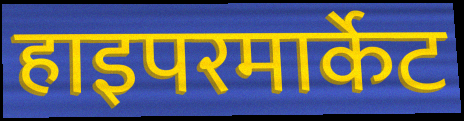
हाइपरमार्केट